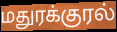
மதுரக்குரல்